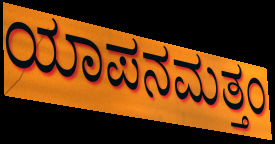
ಯಾಪನಮತ್ತಂ